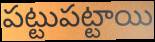
పట్టుపట్టాయి